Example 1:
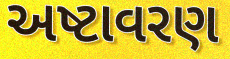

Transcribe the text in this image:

અષ્ટાવરણ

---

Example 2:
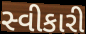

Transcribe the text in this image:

સ્વીકારી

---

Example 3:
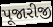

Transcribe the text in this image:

પૂજારીજી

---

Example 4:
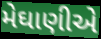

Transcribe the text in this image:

મેઘાણીએ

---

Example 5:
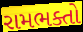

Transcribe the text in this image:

રામભક્તો